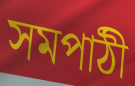
সমপাঠী